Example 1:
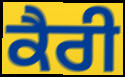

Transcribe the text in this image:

ਕੈਰੀ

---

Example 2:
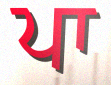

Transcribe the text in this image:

ਪਾ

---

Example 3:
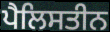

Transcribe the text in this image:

ਪੈਲਿਸਤੀਨ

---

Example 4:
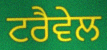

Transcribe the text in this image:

ਟਰੈਵੇਲ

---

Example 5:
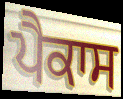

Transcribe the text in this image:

ਪੈਕਾਸ